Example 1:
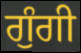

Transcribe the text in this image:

ਗੁੰਗੀ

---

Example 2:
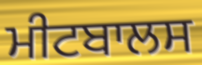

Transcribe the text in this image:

ਮੀਟਬਾਲਸ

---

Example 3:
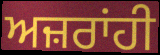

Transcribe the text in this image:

ਅਜ਼ਰਾਂਹੀ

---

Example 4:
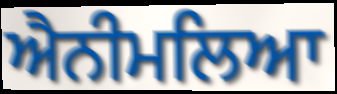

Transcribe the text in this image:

ਐਨੀਮਲਿਆ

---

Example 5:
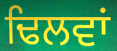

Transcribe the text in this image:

ਢਿਲਵਾਂ